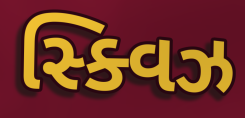
સ્ક્વિઝ